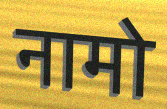
नामो